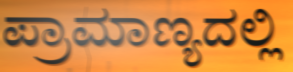
ಪ್ರಾಮಾಣ್ಯದಲ್ಲಿ